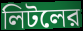
লিটলের